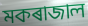
মকৰাজাল